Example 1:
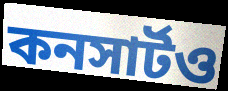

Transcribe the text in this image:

কনসার্টও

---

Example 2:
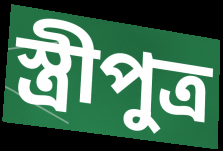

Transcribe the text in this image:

স্ত্রীপুত্র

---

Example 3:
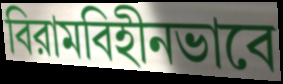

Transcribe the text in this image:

বিরামবিহীনভাবে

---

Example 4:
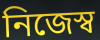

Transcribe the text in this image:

নিজেস্ব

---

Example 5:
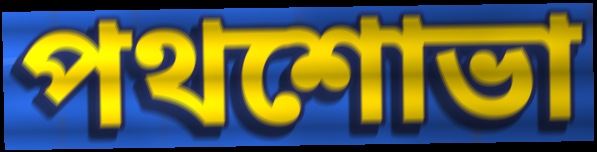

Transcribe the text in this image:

পথশোভা